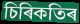
চিৰিকতিৰ